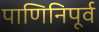
पाणिनिपूर्व